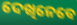
ଦେଖିନେବେ